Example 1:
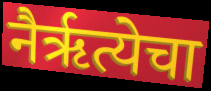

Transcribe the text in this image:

नैर्ऋत्येचा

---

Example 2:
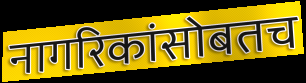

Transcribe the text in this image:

नागरिकांसोबतच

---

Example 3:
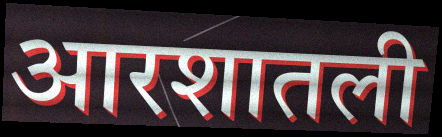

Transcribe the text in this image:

आरशातली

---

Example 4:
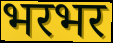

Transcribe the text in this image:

भरभर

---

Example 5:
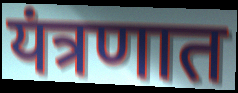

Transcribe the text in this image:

यंत्रणात